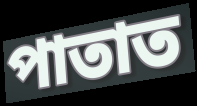
পাতাত